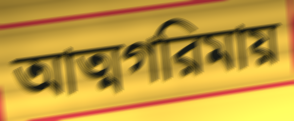
আত্মগরিমায়